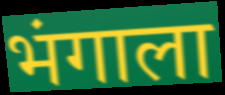
भंगाला